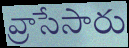
వ్రాసేసారు